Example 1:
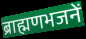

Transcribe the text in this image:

ब्राह्मणभजनें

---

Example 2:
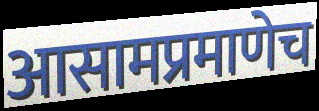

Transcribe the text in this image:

आसामप्रमाणेच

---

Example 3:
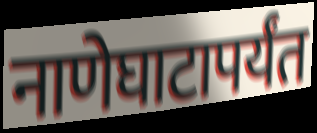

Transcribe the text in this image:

नाणेघाटापर्यंत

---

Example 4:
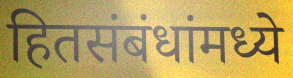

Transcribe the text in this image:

हितसंबंधांमध्ये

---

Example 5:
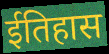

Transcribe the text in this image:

ईतिहास